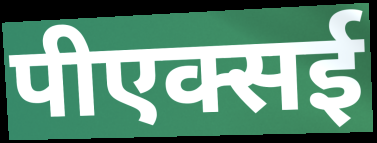
पीएक्सई